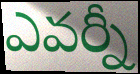
ఎవర్నీ